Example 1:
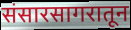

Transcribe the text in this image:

संसारसागरातून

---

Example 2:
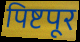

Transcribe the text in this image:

पिष्टपूर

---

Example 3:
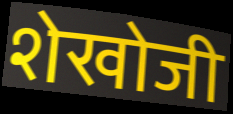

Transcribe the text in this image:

शेखोजी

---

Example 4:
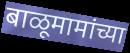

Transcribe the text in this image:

बाळूमामांच्या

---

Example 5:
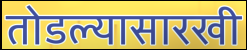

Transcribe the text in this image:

तोडल्यासारखी